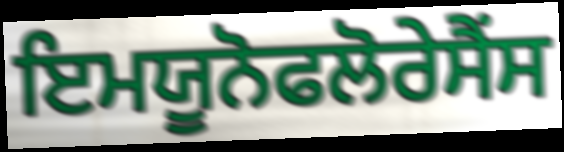
ਇਮਯੂਨੋਫਲੋਰੇਸੈਂਸ